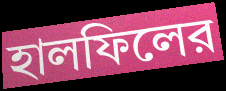
হালফিলের